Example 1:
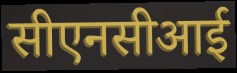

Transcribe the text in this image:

सीएनसीआई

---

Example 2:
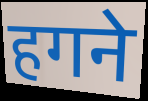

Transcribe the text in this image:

हगने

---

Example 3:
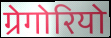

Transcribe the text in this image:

ग्रेगोरियो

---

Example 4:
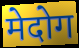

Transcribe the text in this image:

मेदोग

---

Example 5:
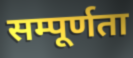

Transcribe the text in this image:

सम्पूर्णता